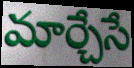
మార్చేసే